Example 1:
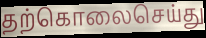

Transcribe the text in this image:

தற்கொலைசெய்து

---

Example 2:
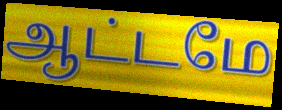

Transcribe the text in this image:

ஆட்டமே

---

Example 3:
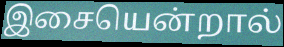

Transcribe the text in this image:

இசையென்றால்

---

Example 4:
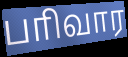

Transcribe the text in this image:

பரிவார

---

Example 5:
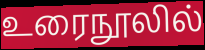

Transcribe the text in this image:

உரைநூலில்